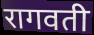
रागवती